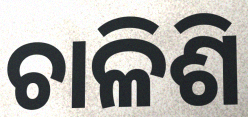
ଚାଳିଶି